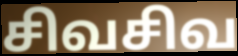
சிவசிவ